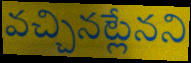
వచ్చినట్లేనని